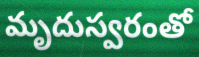
మృదుస్వరంతో